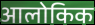
आलोकिक